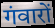
गंवारों